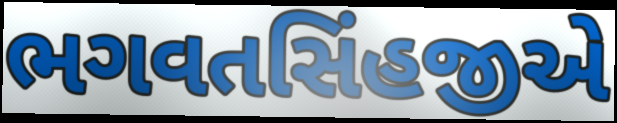
ભગવતસિંહજીએ